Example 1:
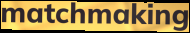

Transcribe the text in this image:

matchmaking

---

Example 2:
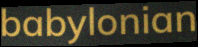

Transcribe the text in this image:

babylonian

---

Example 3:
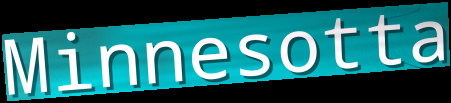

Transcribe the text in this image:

Minnesotta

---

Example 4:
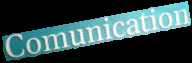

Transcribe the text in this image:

Comunication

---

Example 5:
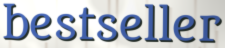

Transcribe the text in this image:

bestseller